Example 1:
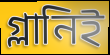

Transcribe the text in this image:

গ্লানিই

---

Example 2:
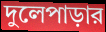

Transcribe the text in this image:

দুলেপাড়ার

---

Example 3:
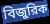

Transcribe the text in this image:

বিজুরিক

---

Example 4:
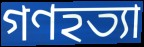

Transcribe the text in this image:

গণহত্যা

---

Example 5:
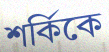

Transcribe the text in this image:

শর্কিকে